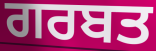
ਗਰਬਤ